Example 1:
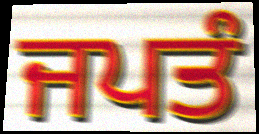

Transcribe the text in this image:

ਜਪਤੰ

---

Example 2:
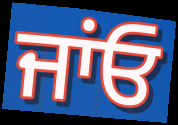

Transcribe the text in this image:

ਜਾਂਓ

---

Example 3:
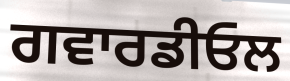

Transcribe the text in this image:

ਗਵਾਰਡੀਓਲ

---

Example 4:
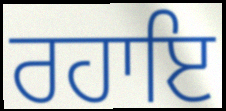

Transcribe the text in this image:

ਰਹਾਇ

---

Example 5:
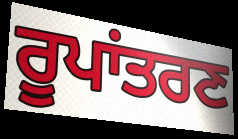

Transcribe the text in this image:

ਰੂਪਾਂਤਰਣ